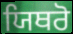
ਯਿਥਰੋ